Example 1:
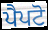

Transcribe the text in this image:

ਪੈਪਟੋ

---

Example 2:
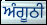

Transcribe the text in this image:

ਅੰਗੂਠੀ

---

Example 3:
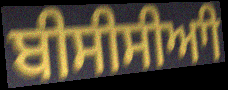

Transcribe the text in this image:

ਬੀਸੀਸੀਆੀ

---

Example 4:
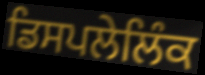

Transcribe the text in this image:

ਡਿਸਪਲੇਲਿੰਕ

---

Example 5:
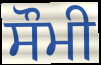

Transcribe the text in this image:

ਸੌਮੀ